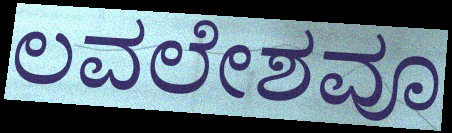
ಲವಲೇಶವೂ